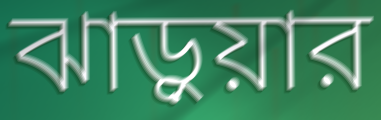
ঝাড়ুয়ার